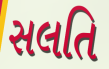
સલતિ